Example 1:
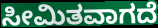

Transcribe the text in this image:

ಸೀಮಿತವಾಗದೆ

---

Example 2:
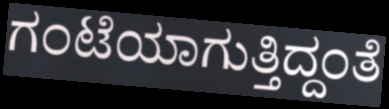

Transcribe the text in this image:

ಗಂಟೆಯಾಗುತ್ತಿದ್ದಂತೆ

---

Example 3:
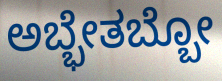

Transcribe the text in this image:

ಅಬ್ಭೇತಬ್ಬೋ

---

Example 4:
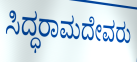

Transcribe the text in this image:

ಸಿದ್ಧರಾಮದೇವರು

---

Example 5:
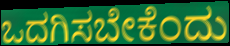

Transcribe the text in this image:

ಒದಗಿಸಬೇಕೆಂದು